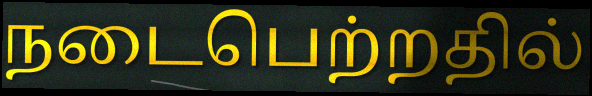
நடைபெற்றதில்